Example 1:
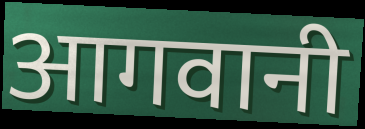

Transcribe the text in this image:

आगवानी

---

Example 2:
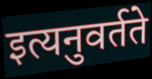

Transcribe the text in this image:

इत्यनुवर्तते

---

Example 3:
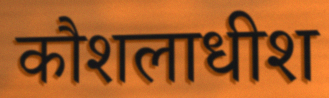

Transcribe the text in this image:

कौशलाधीश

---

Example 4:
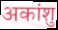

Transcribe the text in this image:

अकांशु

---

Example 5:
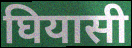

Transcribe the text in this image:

घियासी